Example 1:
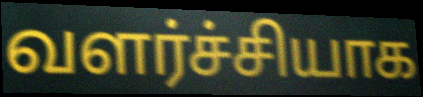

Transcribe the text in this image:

வளர்ச்சியாக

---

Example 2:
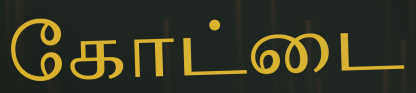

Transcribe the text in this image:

கோட்டை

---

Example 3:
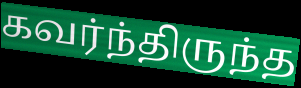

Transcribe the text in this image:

கவர்ந்திருந்த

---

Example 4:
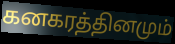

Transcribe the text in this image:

கனகரத்தினமும்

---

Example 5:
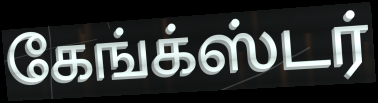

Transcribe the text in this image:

கேங்க்ஸ்டர்